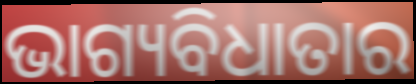
ଭାଗ୍ୟବିଧାତାର